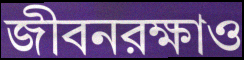
জীবনরক্ষাও